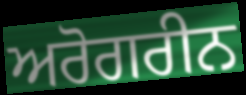
ਅਰੋਗਰੀਨ